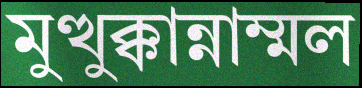
মুত্থুক্কান্নাম্মল